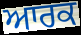
ਆਰਕ